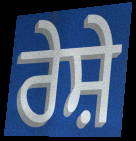
ਰੇਸ਼ੇ